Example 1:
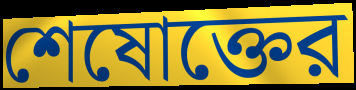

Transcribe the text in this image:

শেষোক্তের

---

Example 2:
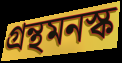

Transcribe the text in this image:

গ্রন্থমনস্ক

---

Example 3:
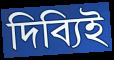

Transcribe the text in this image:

দিব্যিই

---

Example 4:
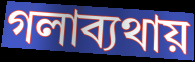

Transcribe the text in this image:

গলাব্যথায়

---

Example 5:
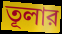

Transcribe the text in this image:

তূলার